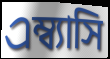
এম্ব্যাসি